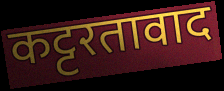
कट्टरतावाद